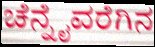
ಚೆನ್ನೈವರೆಗಿನ